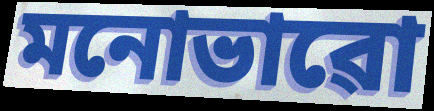
মনোভাৱো